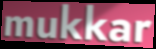
mukkar